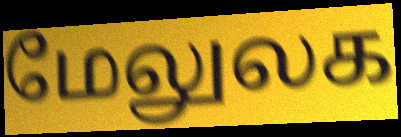
மேலுலக